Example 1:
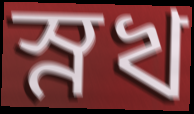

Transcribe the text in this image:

স্নখ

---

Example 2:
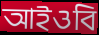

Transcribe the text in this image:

আইওবি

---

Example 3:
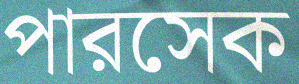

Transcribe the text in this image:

পারসেক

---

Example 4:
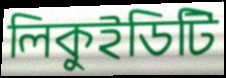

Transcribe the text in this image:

লিকুইডিটি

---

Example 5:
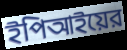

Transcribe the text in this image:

ইপিআইয়ের